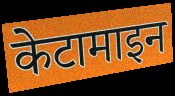
केटामाइन